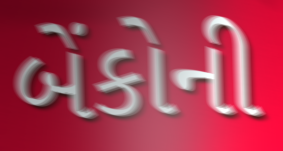
બેંકોની